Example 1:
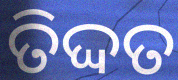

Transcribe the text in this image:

ତିଦ୍ଦତ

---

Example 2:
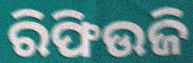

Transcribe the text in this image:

ରିଫିଉଜି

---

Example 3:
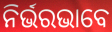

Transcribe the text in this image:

ନିର୍ଭରଭାବେ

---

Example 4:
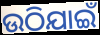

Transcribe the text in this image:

ଉଠିଯାଇଁ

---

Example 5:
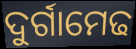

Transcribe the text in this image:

ଦୁର୍ଗାମେଢ